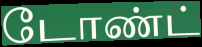
டோண்ட்